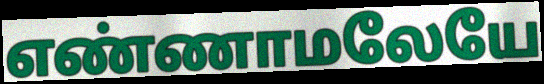
எண்ணாமலேயே